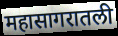
महासागरातली